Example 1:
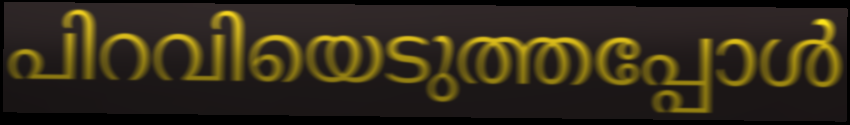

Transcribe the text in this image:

പിറവിയെടുത്തപ്പോൾ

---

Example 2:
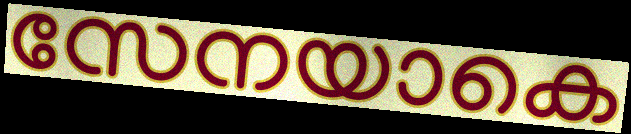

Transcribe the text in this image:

സേനയാകെ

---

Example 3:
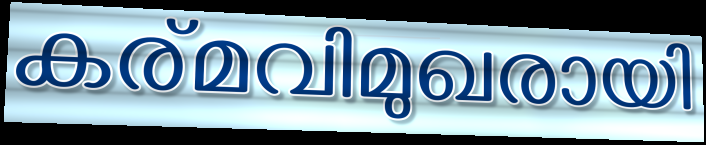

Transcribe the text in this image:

കര്മവിമുഖരായി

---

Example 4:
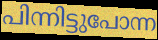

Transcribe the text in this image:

പിന്നിട്ടുപോന്ന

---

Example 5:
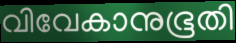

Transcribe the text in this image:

വിവേകാനുഭൂതി